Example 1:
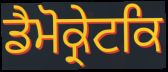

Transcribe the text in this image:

ਡੈਮੋਕ੍ਰੇਟਕਿ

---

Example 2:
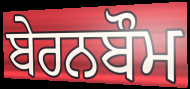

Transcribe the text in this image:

ਬੇਰਨਬੌਮ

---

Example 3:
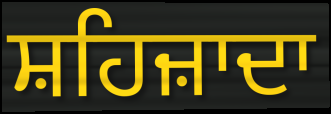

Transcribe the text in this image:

ਸ਼ਹਿਜ਼ਾਦਾ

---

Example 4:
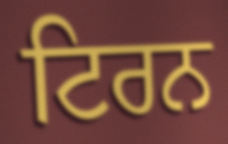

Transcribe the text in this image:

ਟਿਰਨ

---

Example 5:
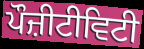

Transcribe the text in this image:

ਪੌਜ਼ੀਟੀਵਿਟੀ